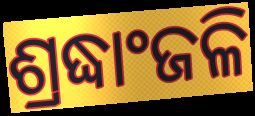
ଶ୍ରଦ୍ଧାଂଜଳି